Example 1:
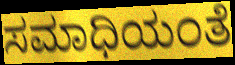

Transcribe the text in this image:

ಸಮಾಧಿಯಂತೆ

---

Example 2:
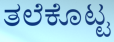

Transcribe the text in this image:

ತಲೆಕೊಟ್ಟ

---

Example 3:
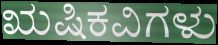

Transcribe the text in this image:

ಋಷಿಕವಿಗಳು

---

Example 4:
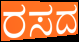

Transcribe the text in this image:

ರಸದ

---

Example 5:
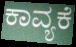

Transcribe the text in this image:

ಕಾವ್ಯಕೆ